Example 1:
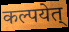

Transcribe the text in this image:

कल्पयेत्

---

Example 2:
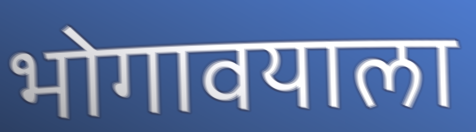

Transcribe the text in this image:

भोगावयाला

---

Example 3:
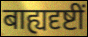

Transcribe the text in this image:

बाह्यदृष्टीं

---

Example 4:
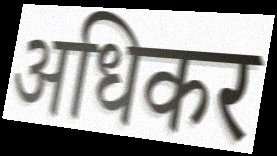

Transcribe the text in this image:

अधिकर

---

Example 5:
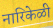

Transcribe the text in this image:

नारिकेळी